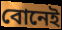
বোনেই